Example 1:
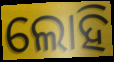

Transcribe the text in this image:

ଲୋହି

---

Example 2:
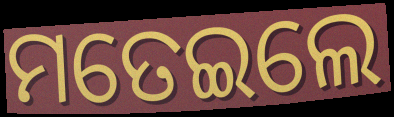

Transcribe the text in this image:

ମତେଇଲେ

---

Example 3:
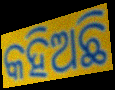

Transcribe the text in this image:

କହିଅଛି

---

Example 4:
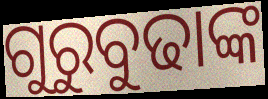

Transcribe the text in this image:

ଗୁରୁବୁଢାଙ୍କ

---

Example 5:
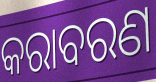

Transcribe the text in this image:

କରାବରଣ